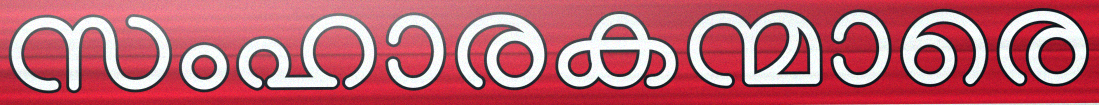
സംഹാരകന്മാരെ